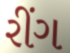
રીંગ